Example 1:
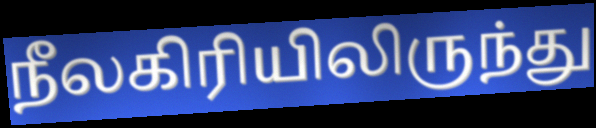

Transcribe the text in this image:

நீலகிரியிலிருந்து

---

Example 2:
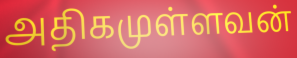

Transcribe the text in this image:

அதிகமுள்ளவன்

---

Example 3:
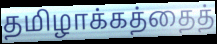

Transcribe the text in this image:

தமிழாக்கத்தைத்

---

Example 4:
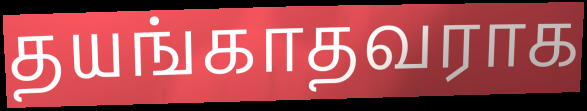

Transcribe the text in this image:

தயங்காதவராக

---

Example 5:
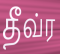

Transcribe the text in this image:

தீவ்ர